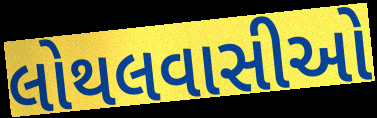
લોથલવાસીઓ